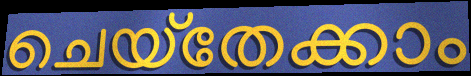
ചെയ്‌തേക്കാം